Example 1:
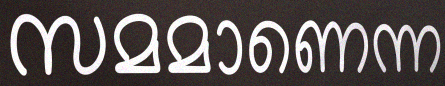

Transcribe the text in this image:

സമമാണെന്ന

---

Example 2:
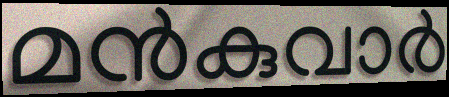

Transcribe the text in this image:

മൻകുവാർ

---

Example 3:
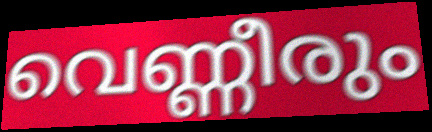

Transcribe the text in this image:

വെണ്ണീരും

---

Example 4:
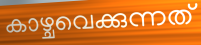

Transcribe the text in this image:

കാഴ്ചവെക്കുന്നത്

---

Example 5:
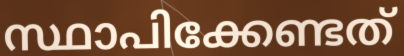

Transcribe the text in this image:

സ്ഥാപിക്കേണ്ടത്